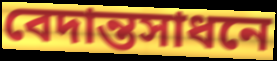
বেদান্তসাধনে